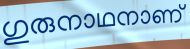
ഗുരുനാഥനാണ്